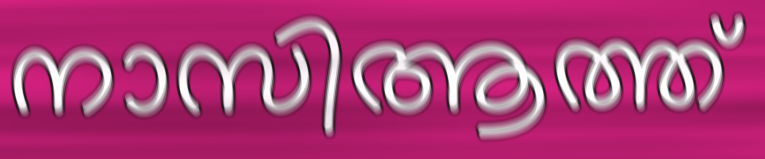
നാസിആത്ത്